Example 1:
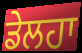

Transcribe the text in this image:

ਡੇਲਹਾ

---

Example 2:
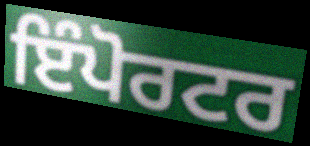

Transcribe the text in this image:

ਇੰਪੋਰਟਰ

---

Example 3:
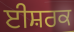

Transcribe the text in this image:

ਈਸ਼ਰਕ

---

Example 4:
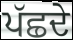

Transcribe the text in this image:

ਪੱਛਦੇ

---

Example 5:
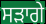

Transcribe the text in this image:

ਸੜਾਗੇ